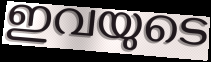
ഇവയുടെ